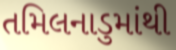
તમિલનાડુમાંથી